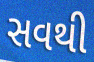
સવથી